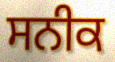
ਸਨੀਕ